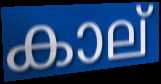
കാല്